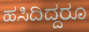
ಹಸಿದಿದ್ದರೂ